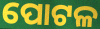
ପୋଟଳ